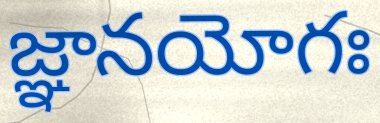
జ్ఞానయోగః